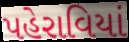
પહેરાવિયાં